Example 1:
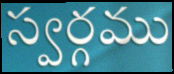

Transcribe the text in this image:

స్వర్గము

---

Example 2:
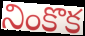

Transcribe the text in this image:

నింకొక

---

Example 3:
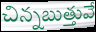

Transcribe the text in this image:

చిన్నబుత్తువే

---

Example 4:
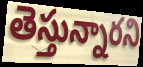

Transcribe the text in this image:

తెస్తున్నారని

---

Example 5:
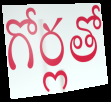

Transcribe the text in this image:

గోర్లతో